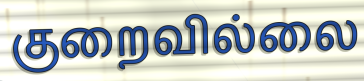
குறைவில்லை